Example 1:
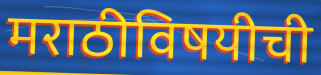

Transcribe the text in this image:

मराठीविषयीची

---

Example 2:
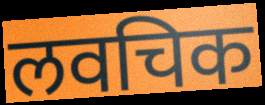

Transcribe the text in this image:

लवचिक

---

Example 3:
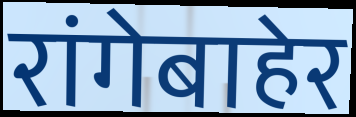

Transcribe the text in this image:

रांगेबाहेर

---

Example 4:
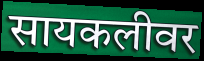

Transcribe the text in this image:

सायकलीवर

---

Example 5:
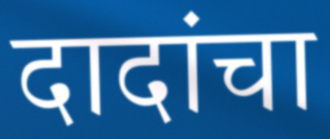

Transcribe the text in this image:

दादांचा